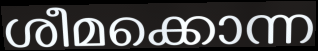
ശീമക്കൊന്ന